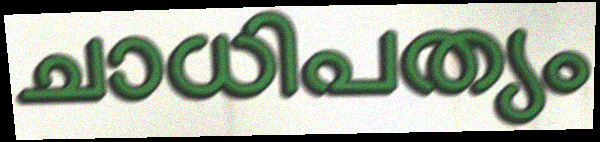
ചാധിപത്യം